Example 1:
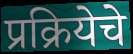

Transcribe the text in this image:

प्रक्रियेचे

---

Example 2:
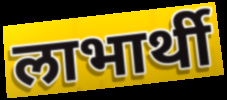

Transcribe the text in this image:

लाभार्थी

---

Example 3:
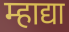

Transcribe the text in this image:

म्हाद्या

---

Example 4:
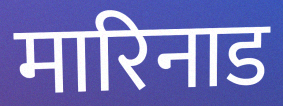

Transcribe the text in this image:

मारिनाड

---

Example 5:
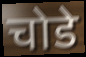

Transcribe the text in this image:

चोडे